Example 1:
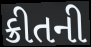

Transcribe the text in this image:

ક્રીતની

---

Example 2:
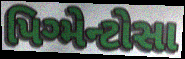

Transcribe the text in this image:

પિગ્મેન્ટોસા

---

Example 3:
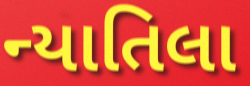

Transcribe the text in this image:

ન્યાતિલા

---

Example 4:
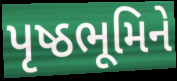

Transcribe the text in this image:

પૃષ્ઠભૂમિને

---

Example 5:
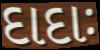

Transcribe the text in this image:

દાદાઃ